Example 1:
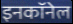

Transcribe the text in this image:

इनकॉनेल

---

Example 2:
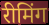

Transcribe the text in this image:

रीमिंग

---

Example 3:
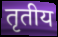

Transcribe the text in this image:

तृतीय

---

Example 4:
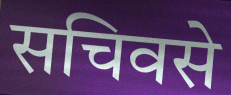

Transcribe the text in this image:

सचिवसे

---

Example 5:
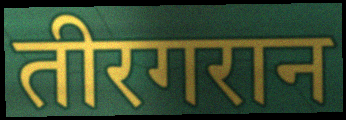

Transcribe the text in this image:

तीरगरान